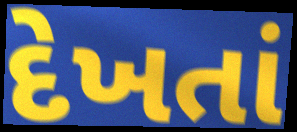
દેખતાં